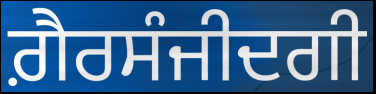
ਗ਼ੈਰਸੰਜੀਦਗੀ